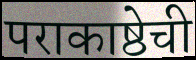
पराकाष्ठेची